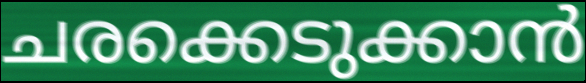
ചരക്കെടുക്കാൻ